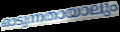
ഓടുന്നതായാലും